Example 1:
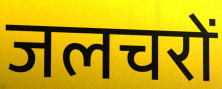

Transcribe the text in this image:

जलचरों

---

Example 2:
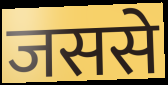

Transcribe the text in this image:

जससे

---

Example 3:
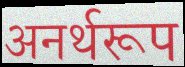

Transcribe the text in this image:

अनर्थरूप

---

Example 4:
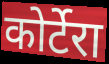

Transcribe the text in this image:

कोर्टेरा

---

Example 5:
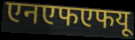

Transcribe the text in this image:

एनएफएफयू